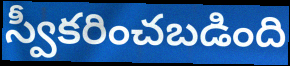
స్వీకరించబడింది